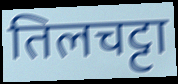
तिलचट्टा